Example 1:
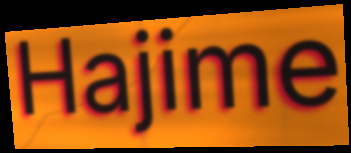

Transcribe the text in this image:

Hajime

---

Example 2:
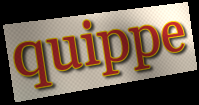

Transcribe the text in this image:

quippe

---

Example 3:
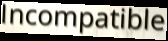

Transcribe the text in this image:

Incompatible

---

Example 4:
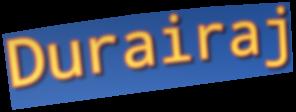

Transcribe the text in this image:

Durairaj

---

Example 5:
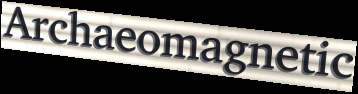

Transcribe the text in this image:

Archaeomagnetic